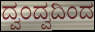
ದ್ವಂದ್ವದಿಂದ